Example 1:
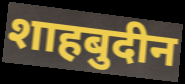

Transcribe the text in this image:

शाहबुदीन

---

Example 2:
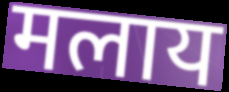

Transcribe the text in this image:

मलाय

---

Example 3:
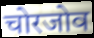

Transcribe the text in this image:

चोरजोव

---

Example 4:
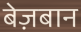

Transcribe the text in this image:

बेज़बान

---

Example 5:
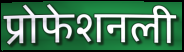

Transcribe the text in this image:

प्रोफेशनली